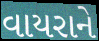
વાયરાને